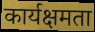
कार्यक्षमता